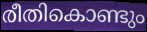
രീതികൊണ്ടും